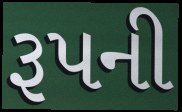
રૂપની